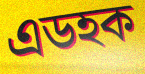
এডহক